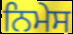
ਨਿਮੇਸ